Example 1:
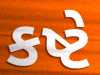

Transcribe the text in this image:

કષ્ટે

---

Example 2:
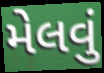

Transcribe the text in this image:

મેલવું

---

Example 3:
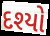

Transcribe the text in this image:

દશ્યો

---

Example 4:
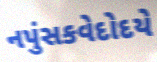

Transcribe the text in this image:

નપુંસકવેદોદયે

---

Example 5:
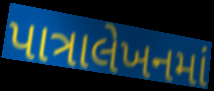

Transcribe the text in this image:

પાત્રાલેખનમાં